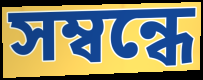
সম্বন্ধে